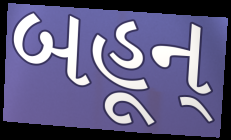
બહૂન્